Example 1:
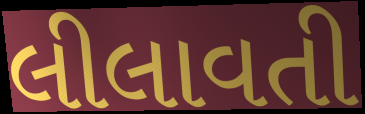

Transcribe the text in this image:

લીલાવતી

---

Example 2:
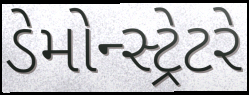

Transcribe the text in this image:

ડેમોન્સ્ટ્રેટરે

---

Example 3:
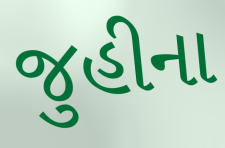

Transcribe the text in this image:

જુહીના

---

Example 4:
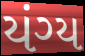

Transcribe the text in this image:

યંગ્ય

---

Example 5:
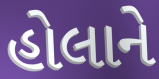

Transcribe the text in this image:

હોલાને